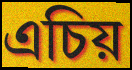
এচিয়